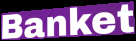
Banket